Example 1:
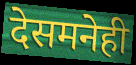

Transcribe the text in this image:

देसमनेही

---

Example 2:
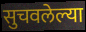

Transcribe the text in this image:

सुचवलेल्या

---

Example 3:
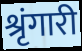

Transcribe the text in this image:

श्रृंगारी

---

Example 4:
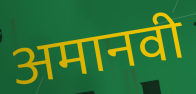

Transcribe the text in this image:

अमानवी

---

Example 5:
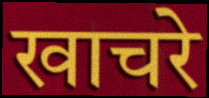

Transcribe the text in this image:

खाचरे